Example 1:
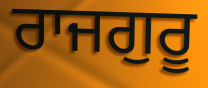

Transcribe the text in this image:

ਰਾਜਗੁਰੂ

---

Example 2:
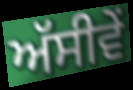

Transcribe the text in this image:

ਅੱਸੀਵੇਂ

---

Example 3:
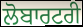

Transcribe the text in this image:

ਲੋਬਾਰਟਰੀ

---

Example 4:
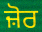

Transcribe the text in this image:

ਜ਼ੋਰ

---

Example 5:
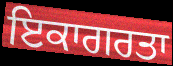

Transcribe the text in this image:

ਇਕਾਗਰਤਾ